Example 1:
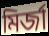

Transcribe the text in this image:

মির্জা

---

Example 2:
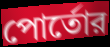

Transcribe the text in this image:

পোর্তোর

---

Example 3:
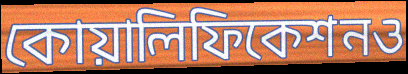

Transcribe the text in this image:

কোয়ালিফিকেশনও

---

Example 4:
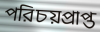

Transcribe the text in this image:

পরিচয়প্রাপ্ত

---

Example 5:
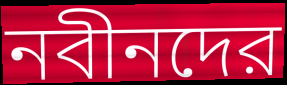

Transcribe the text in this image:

নবীনদের